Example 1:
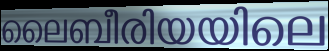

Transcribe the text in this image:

ലൈബീരിയയിലെ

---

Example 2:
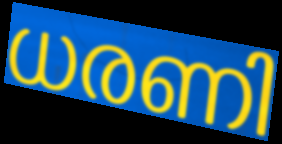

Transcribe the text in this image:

ധരണി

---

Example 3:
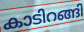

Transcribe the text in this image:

കാടിറങ്ങി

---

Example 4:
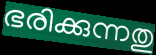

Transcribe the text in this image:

ഭരിക്കുന്നതു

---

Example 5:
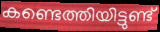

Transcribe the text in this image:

കണ്ടെത്തിയിട്ടുണ്ട്